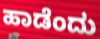
ಹಾಡೆಂದು